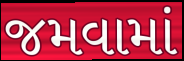
જમવામાં